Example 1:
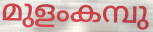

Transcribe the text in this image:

മുളംകമ്പു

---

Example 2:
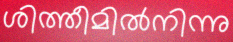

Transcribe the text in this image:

ശിത്തീമിൽനിന്നു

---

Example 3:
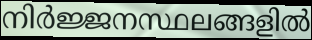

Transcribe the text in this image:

നിർജ്ജനസ്ഥലങ്ങളിൽ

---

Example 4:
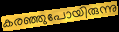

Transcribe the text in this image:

കരഞ്ഞുപോയിരുന്നു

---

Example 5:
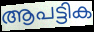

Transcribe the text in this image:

ആപട്ടിക